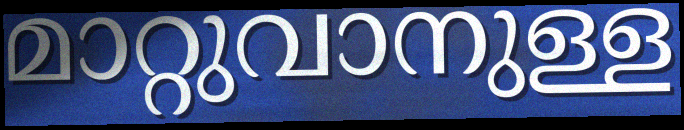
മാറ്റുവാനുള്ള